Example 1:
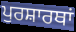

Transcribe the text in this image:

ਪੁਰਸ਼ਾਰਥਾਂ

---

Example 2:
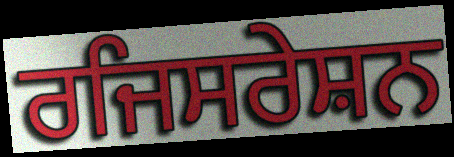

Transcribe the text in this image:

ਰਜਿਸਰੇਸ਼ਨ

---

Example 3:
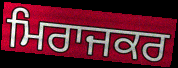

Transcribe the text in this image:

ਮਿਰਾਜਕਰ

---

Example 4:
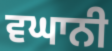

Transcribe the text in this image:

ਵਘਾਨੀ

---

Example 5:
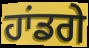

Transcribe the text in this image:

ਹਾਂਡਗੇ